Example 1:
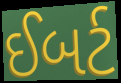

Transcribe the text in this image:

ઈબર્ટ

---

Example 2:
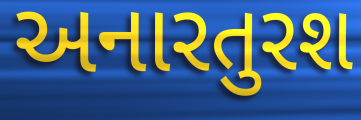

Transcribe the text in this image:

અનારતુરશ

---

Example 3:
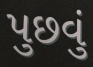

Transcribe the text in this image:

પુછવું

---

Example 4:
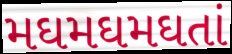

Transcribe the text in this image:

મઘમઘમઘતાં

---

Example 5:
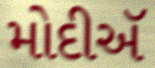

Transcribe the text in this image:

મોદીઍ